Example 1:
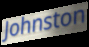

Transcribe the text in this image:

Johnston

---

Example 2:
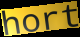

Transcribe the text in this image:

hort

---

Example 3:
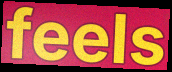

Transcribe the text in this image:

feels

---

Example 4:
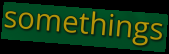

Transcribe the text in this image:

somethings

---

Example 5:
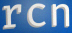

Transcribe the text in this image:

rcn